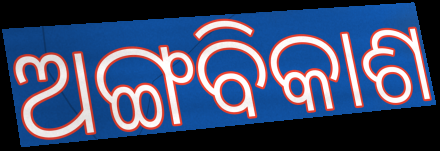
ଅଙ୍ଗବିକାଶ